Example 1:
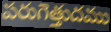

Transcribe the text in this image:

పరుగెత్తుదము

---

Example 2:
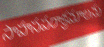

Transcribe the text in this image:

సాహసపరాక్రమాలను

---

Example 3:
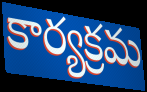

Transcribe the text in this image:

కార్యక్రమ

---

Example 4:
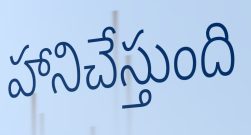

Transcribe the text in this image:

హానిచేస్తుంది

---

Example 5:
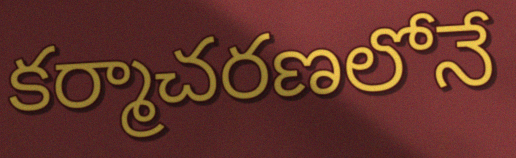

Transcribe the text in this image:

కర్మాచరణలోనే